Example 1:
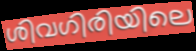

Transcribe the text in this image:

ശിവഗിരിയിലെ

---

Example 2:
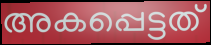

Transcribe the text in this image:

അകപ്പെട്ടത്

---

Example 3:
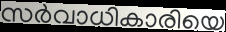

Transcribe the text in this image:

സർവാധികാരിയെ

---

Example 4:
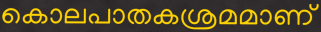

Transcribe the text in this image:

കൊലപാതകശ്രമമാണ്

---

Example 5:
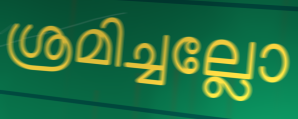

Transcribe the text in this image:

ശ്രമിച്ചല്ലോ